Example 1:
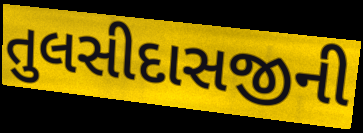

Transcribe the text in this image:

તુલસીદાસજીની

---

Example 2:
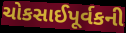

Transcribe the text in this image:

ચોકસાઈપૂર્વકની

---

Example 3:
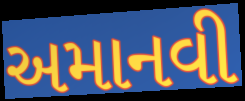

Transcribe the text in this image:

અમાનવી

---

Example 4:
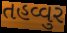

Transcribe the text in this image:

તહવ્વુર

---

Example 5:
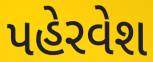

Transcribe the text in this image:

પહેરવેશ